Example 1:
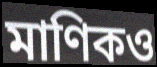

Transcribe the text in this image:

মাণিকও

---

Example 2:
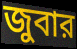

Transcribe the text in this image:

জুবার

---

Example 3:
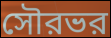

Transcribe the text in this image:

সৌরভর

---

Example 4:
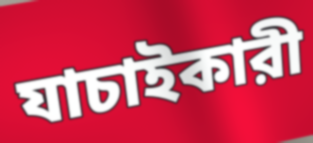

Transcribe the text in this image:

যাচাইকারী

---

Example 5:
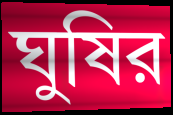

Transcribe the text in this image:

ঘুষির